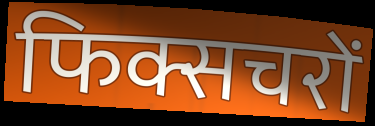
फिक्सचरों